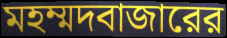
মহম্মদবাজারের